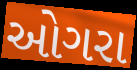
ઓગરા